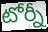
టోర్నీ